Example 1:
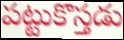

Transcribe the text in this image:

పట్టుకొస్తడు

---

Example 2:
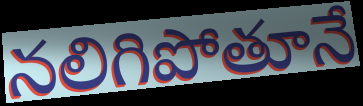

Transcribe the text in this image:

నలిగిపోతూనే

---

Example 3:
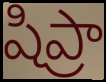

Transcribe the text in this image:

షిప్రా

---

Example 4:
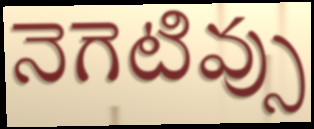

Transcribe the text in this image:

నెగెటివ్సు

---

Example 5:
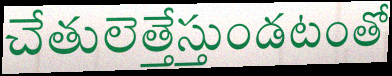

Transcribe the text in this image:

చేతులెత్తేస్తుండటంతో